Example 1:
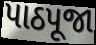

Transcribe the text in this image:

પાઠપૂજા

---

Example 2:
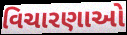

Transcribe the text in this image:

વિચારણાઓ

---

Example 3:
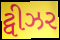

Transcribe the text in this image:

ટ્વીઝર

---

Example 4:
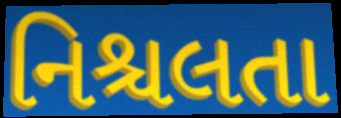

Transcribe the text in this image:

નિશ્ચલતા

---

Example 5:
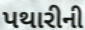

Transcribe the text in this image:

પથારીની